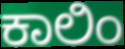
ಕಾಲಿಂ